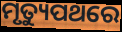
ମୃତ୍ୟୁପଥରେ